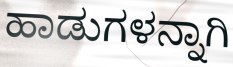
ಹಾಡುಗಳನ್ನಾಗಿ